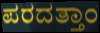
ಪರದತ್ತಾಂ